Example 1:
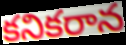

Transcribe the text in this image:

కనికరాన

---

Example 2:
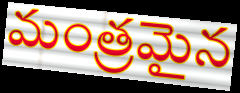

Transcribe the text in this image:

మంత్రమైన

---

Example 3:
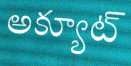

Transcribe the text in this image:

అక్యూట్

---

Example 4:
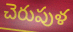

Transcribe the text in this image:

చెరుపుళ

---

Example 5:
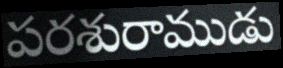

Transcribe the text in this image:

పరశురాముడు